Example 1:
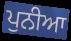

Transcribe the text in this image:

ਪੁਨੀਆ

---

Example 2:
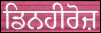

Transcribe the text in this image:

ਡਿਨਹੀਰੋਜ਼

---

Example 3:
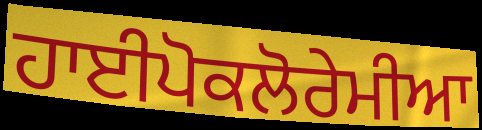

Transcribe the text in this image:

ਹਾਈਪੋਕਲੋਰੇਮੀਆ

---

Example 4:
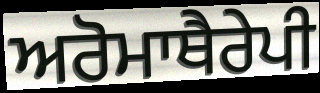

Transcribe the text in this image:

ਅਰੋਮਾਥੈਰੇਪੀ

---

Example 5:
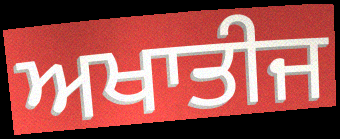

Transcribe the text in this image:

ਅਖਾਤੀਜ